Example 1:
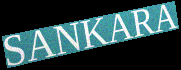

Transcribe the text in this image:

SANKARA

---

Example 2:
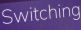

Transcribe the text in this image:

Switching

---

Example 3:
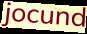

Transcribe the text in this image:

jocund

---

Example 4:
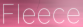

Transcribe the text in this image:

Fleece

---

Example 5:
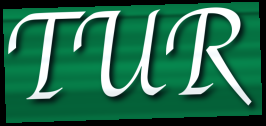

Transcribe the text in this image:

TUR